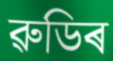
ৱুডিৰ